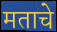
मताचे